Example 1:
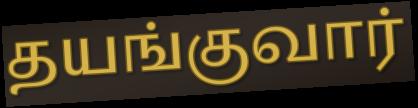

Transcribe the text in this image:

தயங்குவார்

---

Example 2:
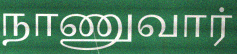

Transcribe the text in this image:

நாணுவார்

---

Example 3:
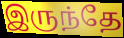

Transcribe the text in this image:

இருந்தே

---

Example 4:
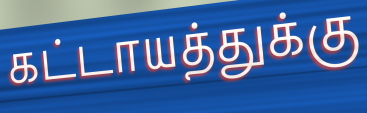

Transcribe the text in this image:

கட்டாயத்துக்கு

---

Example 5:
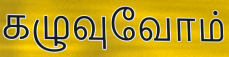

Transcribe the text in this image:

கழுவுவோம்